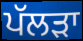
ਪੱਲੜਾ